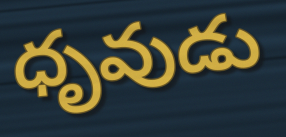
ధృవుడు